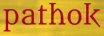
pathok